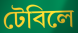
টেবিলে